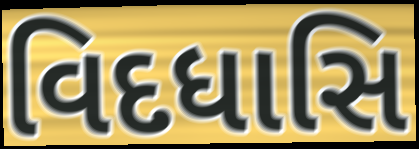
વિદધાસિ